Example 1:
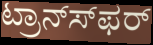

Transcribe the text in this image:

ಟ್ರಾನ್ಸ್‍ಫರ್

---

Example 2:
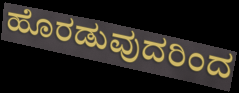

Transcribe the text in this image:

ಹೊರಡುವುದರಿಂದ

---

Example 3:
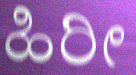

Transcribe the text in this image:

ಹಿರೀ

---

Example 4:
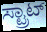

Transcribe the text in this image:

ಸ್ಟ್ರಾಟ್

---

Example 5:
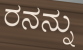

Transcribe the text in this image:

ರನನ್ನು